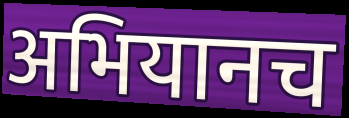
अभियानच